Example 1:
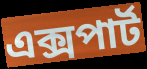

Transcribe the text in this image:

এক্সপার্ট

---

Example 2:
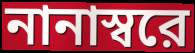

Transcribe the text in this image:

নানাস্বরে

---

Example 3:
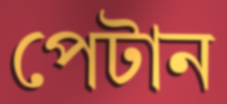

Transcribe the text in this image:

পেটান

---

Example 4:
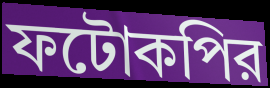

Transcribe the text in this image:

ফটোকপির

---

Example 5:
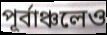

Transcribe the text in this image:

পূর্বাঞ্চলেও